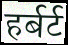
हर्बर्ट